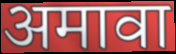
अमावा